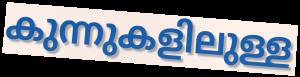
കുന്നുകളിലുള്ള